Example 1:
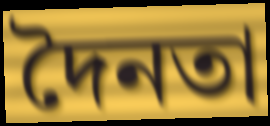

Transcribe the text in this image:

দৈনতা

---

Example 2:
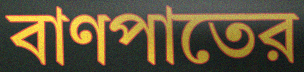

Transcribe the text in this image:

বাণপাতের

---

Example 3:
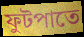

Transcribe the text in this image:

ফুটপাতে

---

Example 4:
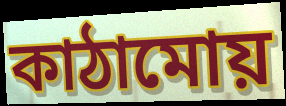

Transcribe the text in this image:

কাঠামোয়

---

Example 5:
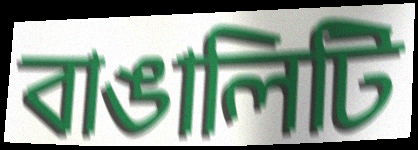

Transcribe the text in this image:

বাঙালিটি